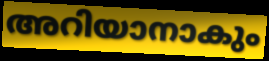
അറിയാനാകും